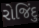
રોજિંદુ